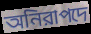
অনিরাপদে